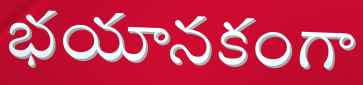
భయానకంగా